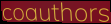
coauthors